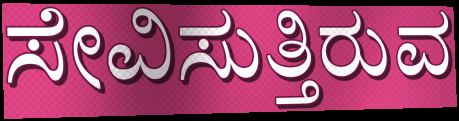
ಸೇವಿಸುತ್ತಿರುವ